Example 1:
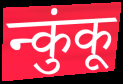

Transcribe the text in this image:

न्कुंकू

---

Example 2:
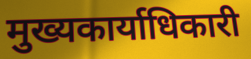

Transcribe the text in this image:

मुख्यकार्याधिकारी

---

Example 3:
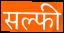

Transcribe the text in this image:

सल्फी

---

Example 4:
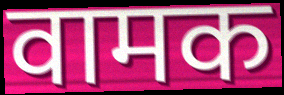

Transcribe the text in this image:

वामक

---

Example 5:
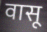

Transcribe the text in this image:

वासू